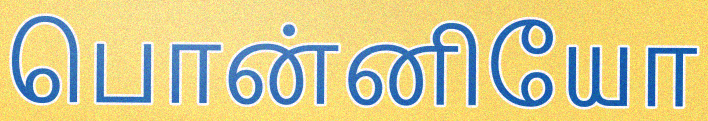
பொன்னியோ